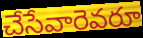
చేసేవారెవరూ